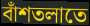
বাঁশতলাতে